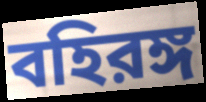
বহিরঙ্গ